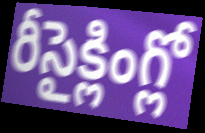
రీసైక్లింగ్లో